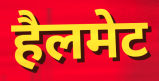
हैलमेट